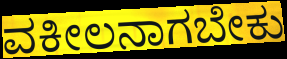
ವಕೀಲನಾಗಬೇಕು